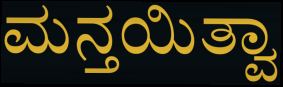
ಮನ್ತಯಿತ್ವಾ